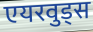
एयरवुड्स